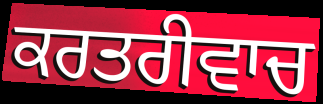
ਕਰਤਰੀਵਾਚ